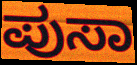
ಪುಸಾ